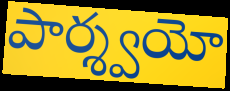
పార్శ్వయో